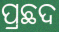
ପ୍ରଛଦ